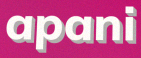
apani